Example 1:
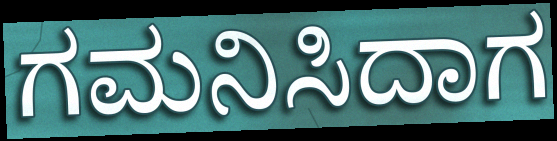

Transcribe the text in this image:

ಗಮನಿಸಿದಾಗ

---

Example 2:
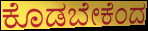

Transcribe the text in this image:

ಕೊಡಬೇಕೆಂದ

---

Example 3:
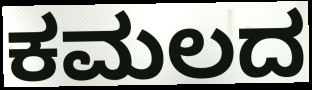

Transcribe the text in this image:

ಕಮಲದ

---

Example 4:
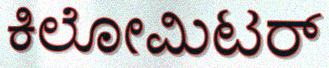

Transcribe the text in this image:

ಕಿಲೋಮಿಟರ್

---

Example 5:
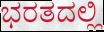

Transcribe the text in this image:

ಭರತದಲ್ಲಿ